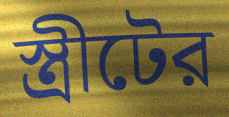
স্ত্রীটের